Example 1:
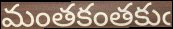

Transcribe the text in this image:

మంతకంతకుఁ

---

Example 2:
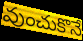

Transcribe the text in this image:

వుంచుకొనే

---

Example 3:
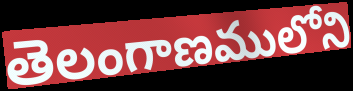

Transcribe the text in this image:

తెలంగాణములోని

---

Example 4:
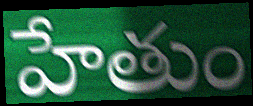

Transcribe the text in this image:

హేతుం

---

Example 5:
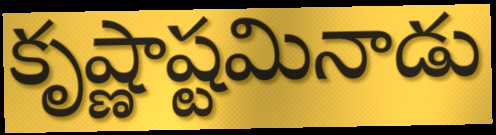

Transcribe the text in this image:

కృష్ణాష్టమినాడు